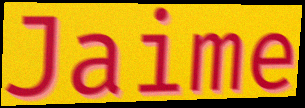
Jaime